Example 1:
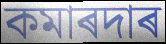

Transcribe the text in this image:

কমাৰদাৰ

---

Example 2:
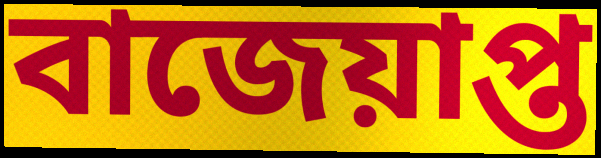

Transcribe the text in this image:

বাজেয়াপ্ত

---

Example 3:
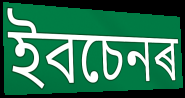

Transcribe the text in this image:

ইবচেনৰ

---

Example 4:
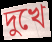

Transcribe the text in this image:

দুখে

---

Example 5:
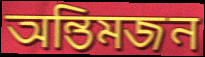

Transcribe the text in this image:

অন্তিমজন